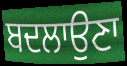
ਬਦਲਾਉਣਾ